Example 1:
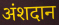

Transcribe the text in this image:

अंशदान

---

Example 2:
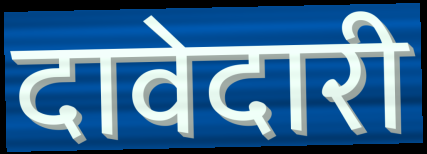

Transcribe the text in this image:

दावेदारी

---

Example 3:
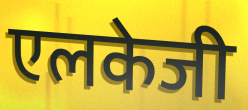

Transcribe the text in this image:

एलकेजी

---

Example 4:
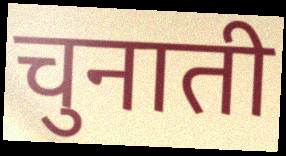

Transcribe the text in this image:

चुनाती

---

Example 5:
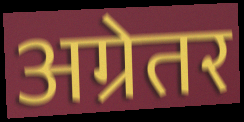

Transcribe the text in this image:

अग्रेतर